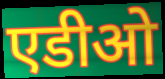
एडीओ